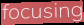
focusing